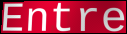
Entre